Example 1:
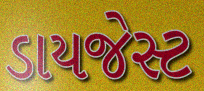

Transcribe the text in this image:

ડાયજેસ્ટ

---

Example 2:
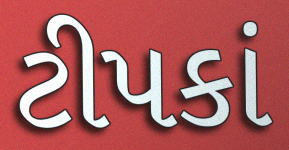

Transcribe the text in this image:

ટીપકાં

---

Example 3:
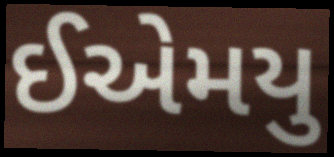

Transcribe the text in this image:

ઈએમયુ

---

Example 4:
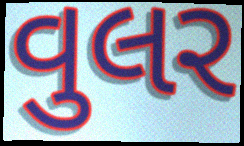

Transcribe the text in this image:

વુલર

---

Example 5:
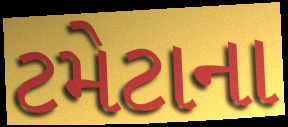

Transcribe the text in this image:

ટમેટાના